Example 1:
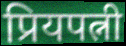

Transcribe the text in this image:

प्रियपत्नी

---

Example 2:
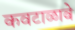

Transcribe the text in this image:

कवटाळावे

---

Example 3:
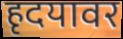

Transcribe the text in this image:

हृदयावर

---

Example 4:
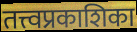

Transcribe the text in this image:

तत्त्वप्रकाशिका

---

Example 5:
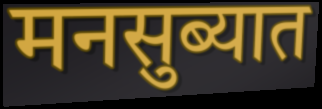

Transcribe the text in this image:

मनसुब्यात